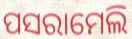
ପସରାମେଲି